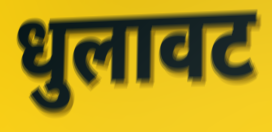
धुलावट